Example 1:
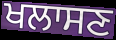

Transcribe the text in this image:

ਖਲਾਸਣ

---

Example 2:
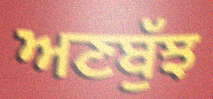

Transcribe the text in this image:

ਅਣਬੁੱਝ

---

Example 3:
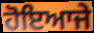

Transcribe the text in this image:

ਹੋਇਆਜੇ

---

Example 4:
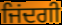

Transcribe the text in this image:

ਜਿਂਦਗੀ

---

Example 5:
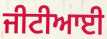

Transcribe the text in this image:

ਜੀਟੀਆਈ